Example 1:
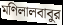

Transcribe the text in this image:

মণিলালবাবুর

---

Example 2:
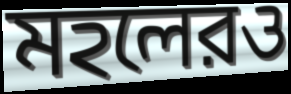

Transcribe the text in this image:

মহলেরও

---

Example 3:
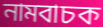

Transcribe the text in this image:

নামবাচক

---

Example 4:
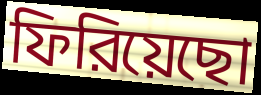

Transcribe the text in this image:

ফিরিয়েছো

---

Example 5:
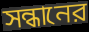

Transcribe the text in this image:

সন্ধানের